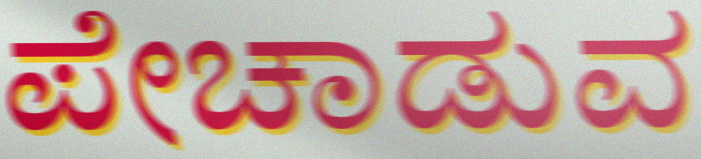
ಪೇಚಾಡುವ